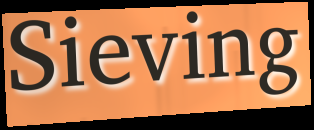
Sieving